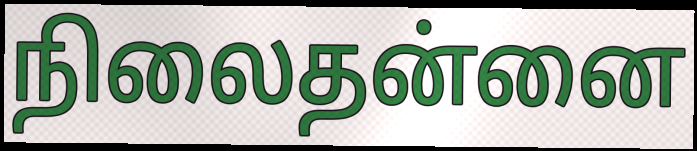
நிலைதன்னை